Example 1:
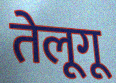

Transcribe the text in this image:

तेलूगू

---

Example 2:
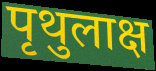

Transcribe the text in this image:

पृथुलाक्ष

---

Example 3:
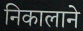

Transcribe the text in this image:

निकालाने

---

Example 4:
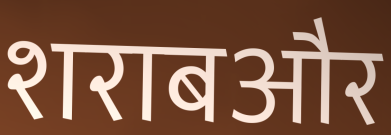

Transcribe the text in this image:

शराबऔर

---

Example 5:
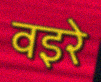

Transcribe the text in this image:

वइरे